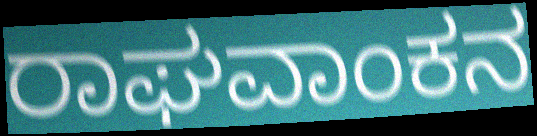
ರಾಘವಾಂಕನ